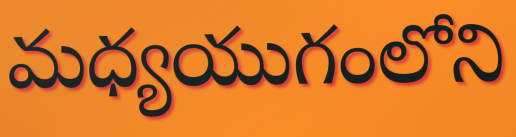
మధ్యయుగంలోని